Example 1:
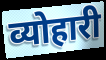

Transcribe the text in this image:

व्योहारी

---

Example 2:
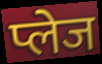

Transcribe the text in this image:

प्‍लेज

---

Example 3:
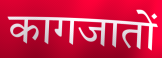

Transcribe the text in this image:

कागजातों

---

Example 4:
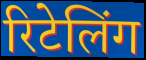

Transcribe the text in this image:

रिटेलिंग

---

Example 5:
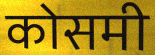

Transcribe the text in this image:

कोसमी